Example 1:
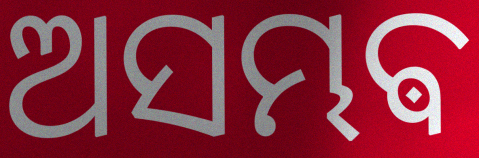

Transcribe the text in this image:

ଅସମ୍ଭଵ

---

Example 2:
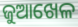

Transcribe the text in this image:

ଜୁଆଖେଳ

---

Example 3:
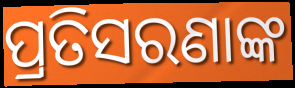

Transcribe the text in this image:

ପ୍ରତିସରଣାଙ୍କ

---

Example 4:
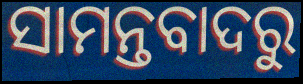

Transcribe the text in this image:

ସାମନ୍ତବାଦରୁ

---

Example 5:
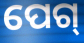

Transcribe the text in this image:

ପେଗ୍